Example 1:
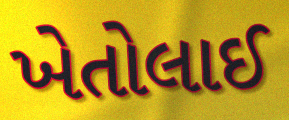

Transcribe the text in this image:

ખેતોલાઈ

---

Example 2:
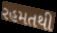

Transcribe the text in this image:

રહમતથી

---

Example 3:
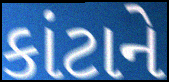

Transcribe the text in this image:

કાંટાને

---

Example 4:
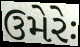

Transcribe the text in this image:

ઉમેરેઃ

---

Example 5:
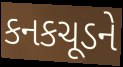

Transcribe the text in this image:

કનકચૂડને